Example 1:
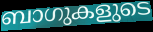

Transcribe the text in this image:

ബാഗുകളുടെ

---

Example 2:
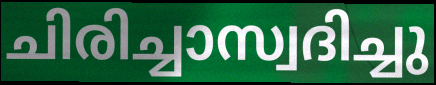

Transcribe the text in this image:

ചിരിച്ചാസ്വദിച്ചു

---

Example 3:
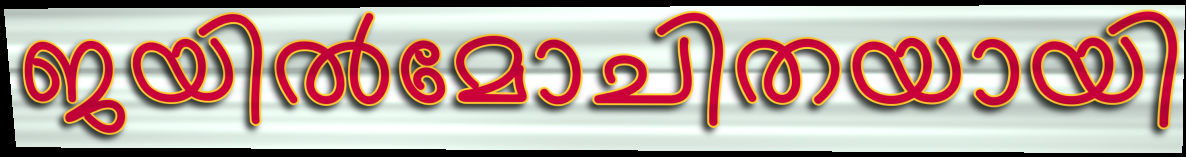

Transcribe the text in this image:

ജയിൽമോചിതയായി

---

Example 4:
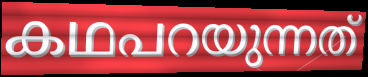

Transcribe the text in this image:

കഥപറയുന്നത്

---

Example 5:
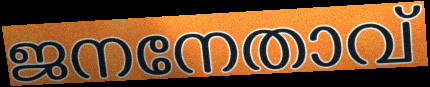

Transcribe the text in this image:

ജനനേതാവ്